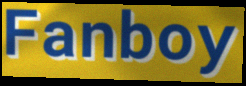
Fanboy